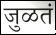
जुळतं